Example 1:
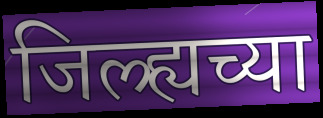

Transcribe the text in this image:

जिल्ह्यच्या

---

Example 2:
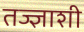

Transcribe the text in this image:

तज्ज्ञाशी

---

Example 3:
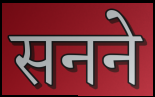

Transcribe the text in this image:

सनने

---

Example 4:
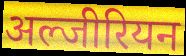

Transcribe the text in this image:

अल्जीरियन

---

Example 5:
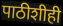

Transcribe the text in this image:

पाठीशीही